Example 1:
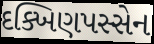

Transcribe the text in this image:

દક્ખિણપસ્સેન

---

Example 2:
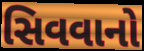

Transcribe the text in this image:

સિવવાનો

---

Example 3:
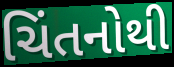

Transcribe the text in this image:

ચિંતનોથી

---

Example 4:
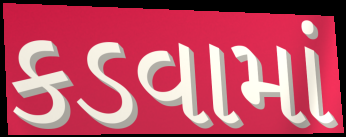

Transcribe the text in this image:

કડવામાં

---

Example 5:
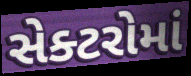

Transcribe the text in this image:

સેક્ટરોમાં